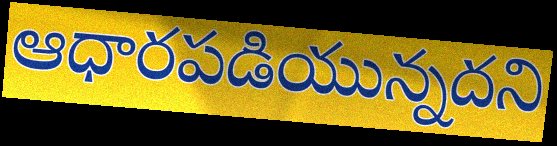
ఆధారపడియున్నదని